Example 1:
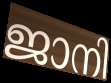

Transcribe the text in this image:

ജാനി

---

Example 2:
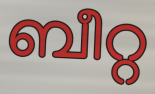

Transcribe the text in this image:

ബീറ്റ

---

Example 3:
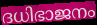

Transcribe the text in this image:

ദധിഭാജനം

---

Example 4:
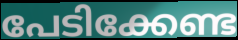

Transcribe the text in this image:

പേടിക്കേണ്ട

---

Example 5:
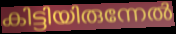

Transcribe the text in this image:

കിട്ടിയിരുന്നേൽ